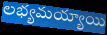
లభ్యమయ్యాయి